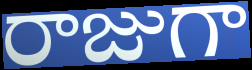
రాజుగా